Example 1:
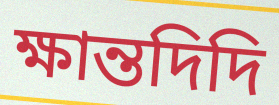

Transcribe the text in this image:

ক্ষান্তদিদি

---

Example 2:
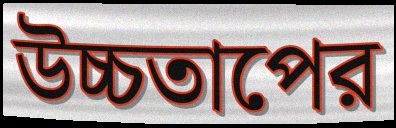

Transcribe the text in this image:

উচ্চতাপের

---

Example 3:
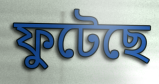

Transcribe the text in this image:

ফুটেছে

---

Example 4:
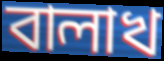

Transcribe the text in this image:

বালাখ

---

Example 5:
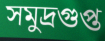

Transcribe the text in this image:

সমুদ্রগুপ্ত